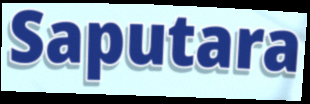
Saputara